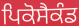
ਪਿਕੋਸੈਕੰਡ